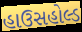
હાઉસહોલ્ડ